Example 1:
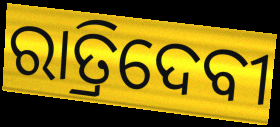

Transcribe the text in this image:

ରାତ୍ରିଦେବୀ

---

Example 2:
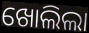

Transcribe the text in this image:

ଖୋଲିଲା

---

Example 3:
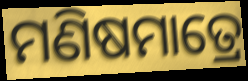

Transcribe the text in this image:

ମଣିଷମାତ୍ରେ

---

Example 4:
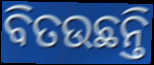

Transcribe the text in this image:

ବିତଉଛନ୍ତି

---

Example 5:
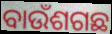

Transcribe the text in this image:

ବାଉଁଶଗଛ